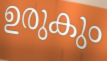
ഉരുകും